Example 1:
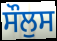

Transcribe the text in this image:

ਸੌਲੁਸ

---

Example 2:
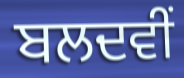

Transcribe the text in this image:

ਬਲਦਵੀਂ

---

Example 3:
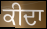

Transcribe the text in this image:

ਕੀਦਾ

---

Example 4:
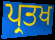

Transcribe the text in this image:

ਪ੍ਰਤਖ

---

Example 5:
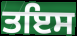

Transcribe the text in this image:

ਤਇਸ